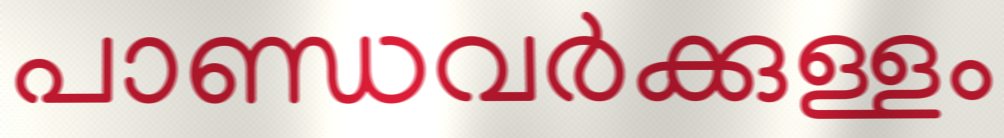
പാണ്ഡവർക്കുള്ളം